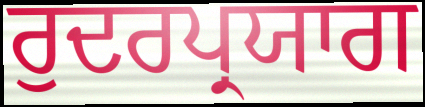
ਰੁਦਰਪ੍ਰਯਾਗ